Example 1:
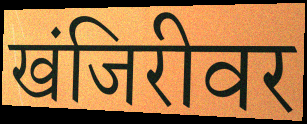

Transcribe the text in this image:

खंजिरीवर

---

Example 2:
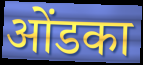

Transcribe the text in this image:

ओंडका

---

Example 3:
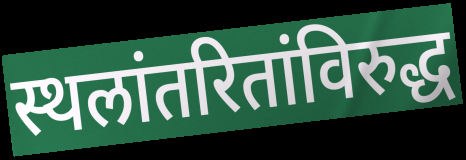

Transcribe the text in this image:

स्थलांतरितांविरुद्ध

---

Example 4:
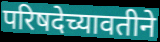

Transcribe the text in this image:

परिषदेच्यावतीने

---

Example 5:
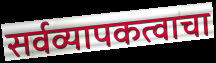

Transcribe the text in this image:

सर्वव्यापकत्वाचा